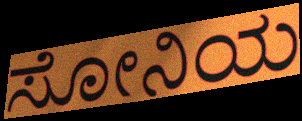
ಸೋನಿಯ